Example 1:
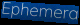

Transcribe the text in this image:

Ephemera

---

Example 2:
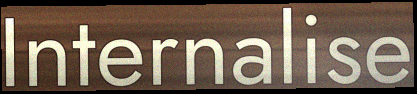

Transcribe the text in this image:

Internalise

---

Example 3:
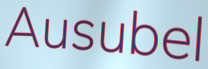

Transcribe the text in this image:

Ausubel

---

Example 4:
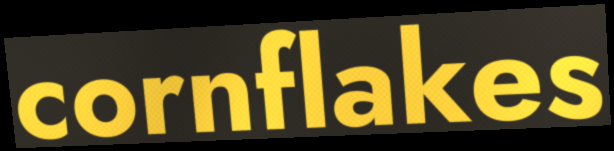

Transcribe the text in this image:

cornflakes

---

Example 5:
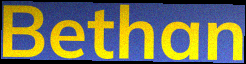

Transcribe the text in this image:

Bethan